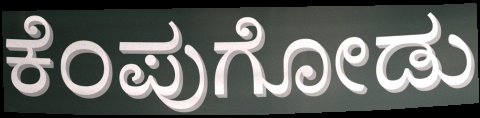
ಕೆಂಪುಗೋಡು